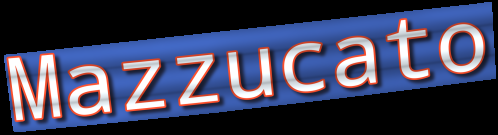
Mazzucato